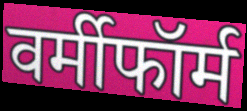
वर्मीफॉर्म